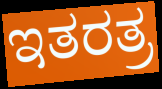
ಇತರತ್ರ